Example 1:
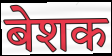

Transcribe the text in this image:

बेशक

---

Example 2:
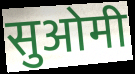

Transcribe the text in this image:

सुओमी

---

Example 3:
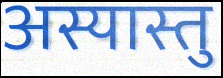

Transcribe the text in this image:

अस्यास्तु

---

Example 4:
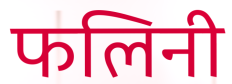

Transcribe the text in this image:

फलिनी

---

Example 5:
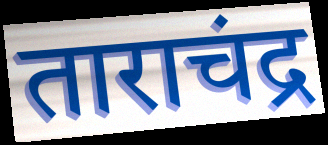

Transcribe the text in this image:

ताराचंद्र